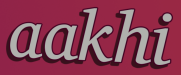
aakhi